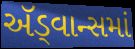
ઍડ્વાન્સમાં